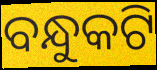
ବନ୍ଧୁକଟି